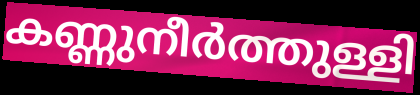
കണ്ണുനീർത്തുള്ളി